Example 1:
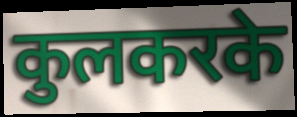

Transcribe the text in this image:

कुलकरके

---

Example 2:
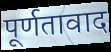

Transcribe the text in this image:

पूर्णतावाद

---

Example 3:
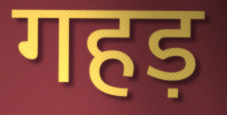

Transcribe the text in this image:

गहड़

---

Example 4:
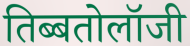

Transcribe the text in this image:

तिब्बतोलॉजी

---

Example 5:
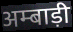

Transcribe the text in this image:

अम्बाड़ी